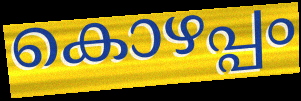
കൊഴപ്പം